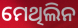
ମେଥିଲିନ